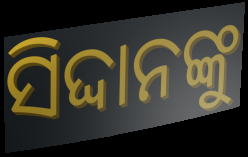
ସିଦ୍ଦାନଙ୍କୁ